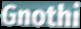
Gnothi